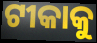
ଟୀକାକୁ